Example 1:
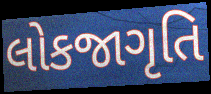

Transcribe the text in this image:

લોકજાગૃતિ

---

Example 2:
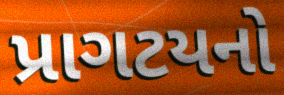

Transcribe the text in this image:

પ્રાગટયનો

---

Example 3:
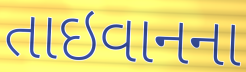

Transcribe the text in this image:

તાઇવાનના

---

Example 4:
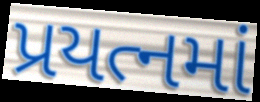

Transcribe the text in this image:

પ્રયત્નમાં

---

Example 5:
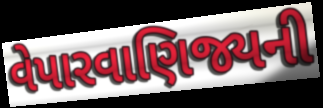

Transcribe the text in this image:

વેપારવાણિજ્યની